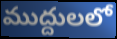
ముద్దులలో